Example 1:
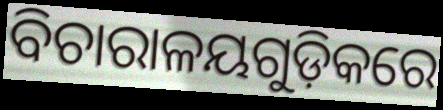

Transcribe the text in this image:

ବିଚାରାଳୟଗୁଡ଼ିକରେ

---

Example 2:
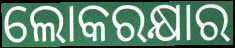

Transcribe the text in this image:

ଲୋକରକ୍ଷାର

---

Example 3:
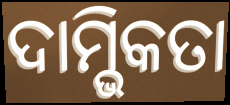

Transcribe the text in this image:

ଦାମ୍ଭିକତା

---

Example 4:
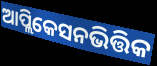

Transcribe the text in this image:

ଆପ୍ଲିକେସନଭିତ୍ତିକ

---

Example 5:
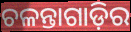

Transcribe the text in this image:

ଚଳନ୍ତାଗାଡ଼ିର